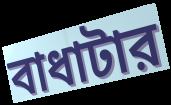
বাধাটার